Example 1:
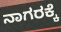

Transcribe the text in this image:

ನಾಗರಕ್ಕೆ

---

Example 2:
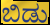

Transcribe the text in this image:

ಬಿಡು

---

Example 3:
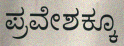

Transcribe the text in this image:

ಪ್ರವೇಶಕ್ಕೂ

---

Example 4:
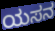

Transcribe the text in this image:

ಯಸನ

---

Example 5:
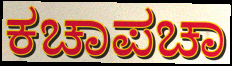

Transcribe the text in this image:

ಕಚಾಪಚಾ